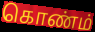
கொண்ம்